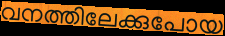
വനത്തിലേക്കുപോയ